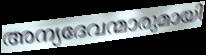
അന്യദേവന്മാരുമായി